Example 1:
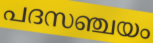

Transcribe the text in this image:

പദസഞ്ചയം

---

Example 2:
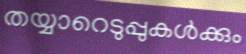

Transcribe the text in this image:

തയ്യാറെടുപ്പുകൾക്കും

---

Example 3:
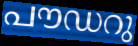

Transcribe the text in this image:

പൗഡറു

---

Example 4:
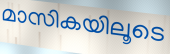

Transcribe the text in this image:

മാസികയിലൂടെ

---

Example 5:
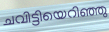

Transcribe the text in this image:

ചവിട്ടിയെറിഞ്ഞു